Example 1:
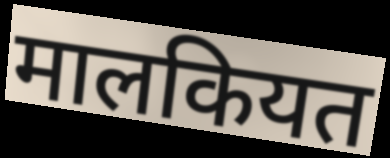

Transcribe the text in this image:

मालकियत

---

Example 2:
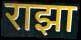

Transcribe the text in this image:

राझा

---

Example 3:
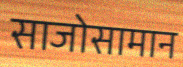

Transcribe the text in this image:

साजोसामान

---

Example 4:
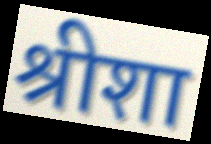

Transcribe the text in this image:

श्रीशा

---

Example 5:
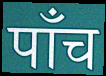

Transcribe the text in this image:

पॉंच